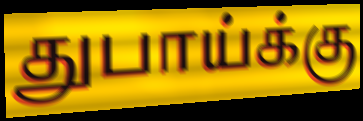
துபாய்க்கு